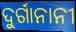
ଦୁର୍ଗାନାନୀ